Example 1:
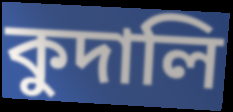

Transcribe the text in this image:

কুদালি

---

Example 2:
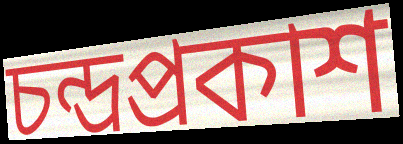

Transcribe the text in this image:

চন্দ্ৰপ্ৰকাশ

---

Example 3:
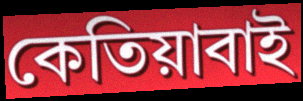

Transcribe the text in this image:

কেতিয়াবাই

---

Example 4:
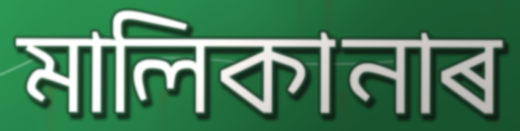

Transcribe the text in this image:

মালিকানাৰ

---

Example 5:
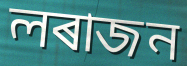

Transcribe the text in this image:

লৰাজন